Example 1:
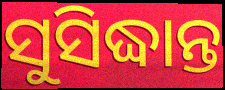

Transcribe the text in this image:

ସୁସିଦ୍ଧାନ୍ତ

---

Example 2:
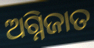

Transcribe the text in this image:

ଅଗ୍ନିଜାତ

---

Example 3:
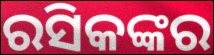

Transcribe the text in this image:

ରସିକଙ୍କର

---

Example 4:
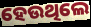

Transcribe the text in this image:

ହେଉଥିଲେ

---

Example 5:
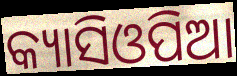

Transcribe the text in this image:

କ୍ୟାସିଓପିଆ